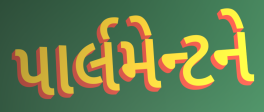
પાર્લમેન્ટને